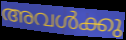
അവൾക്കു